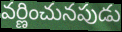
వర్ణించునపుడు